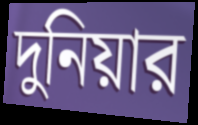
দুনিয়ার